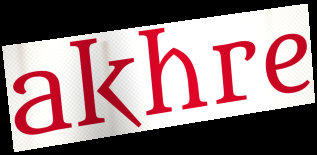
akhre